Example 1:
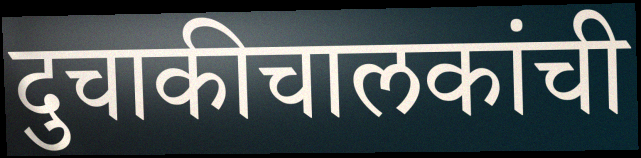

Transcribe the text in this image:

दुचाकीचालकांची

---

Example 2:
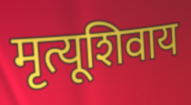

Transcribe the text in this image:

मृत्यूशिवाय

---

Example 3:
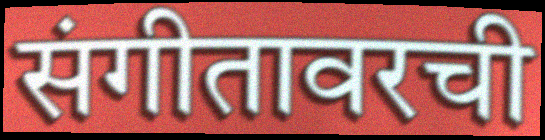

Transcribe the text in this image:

संगीतावरची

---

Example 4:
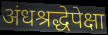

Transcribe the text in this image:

अंधश्रद्धेपेक्षा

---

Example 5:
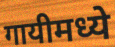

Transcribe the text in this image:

गायीमध्ये